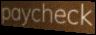
paycheck